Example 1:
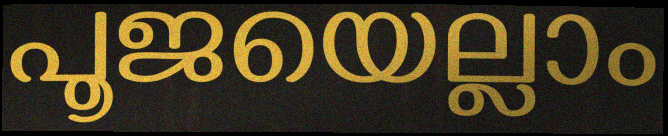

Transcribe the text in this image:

പൂജയെല്ലാം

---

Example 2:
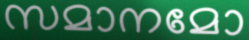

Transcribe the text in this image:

സമാനമോ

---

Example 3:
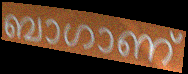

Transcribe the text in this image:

ബാഗാണ്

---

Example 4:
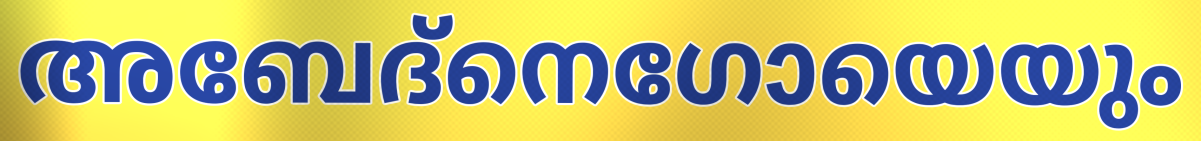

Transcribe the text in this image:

അബേദ്നെഗോയെയും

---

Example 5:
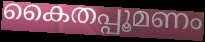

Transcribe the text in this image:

കൈതപ്പൂമണം